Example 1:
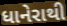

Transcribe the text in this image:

ધાનેરાથી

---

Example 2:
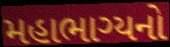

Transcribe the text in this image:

મહાભાગ્યનો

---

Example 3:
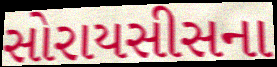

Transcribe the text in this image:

સોરાયસીસના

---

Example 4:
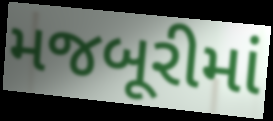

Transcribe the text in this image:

મજબૂરીમાં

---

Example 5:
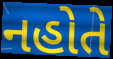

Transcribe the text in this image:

નહોતે